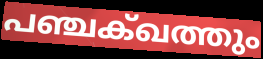
പഞ്ചക്ഖത്തും